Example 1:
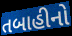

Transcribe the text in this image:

તબાહીનો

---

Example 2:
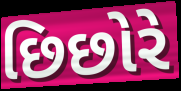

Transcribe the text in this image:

છિછોરે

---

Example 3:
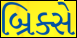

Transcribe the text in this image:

બ્રિક્સે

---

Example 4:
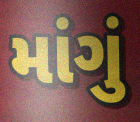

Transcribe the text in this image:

માંગું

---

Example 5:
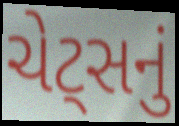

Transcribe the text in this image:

ચેટ્સનું